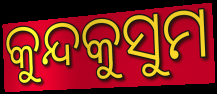
କୁନ୍ଦକୁସୁମ